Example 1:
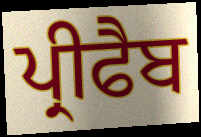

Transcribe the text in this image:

ਪ੍ਰੀਫੈਬ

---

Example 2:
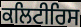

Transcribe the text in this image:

ਕਲਿਟੀਰਿਸ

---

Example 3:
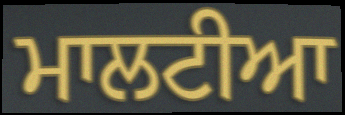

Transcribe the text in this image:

ਮਾਲਟੀਆ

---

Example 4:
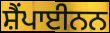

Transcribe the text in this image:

ਸ਼ੈਂਪਾਈਨਨ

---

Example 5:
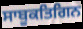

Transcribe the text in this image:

ਸਾਬੂਕਤਿਗਿਨ